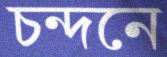
চন্দনে